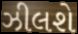
ઝીલશે